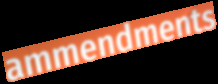
ammendments